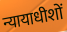
न्यायाधीशों